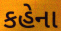
કહેના